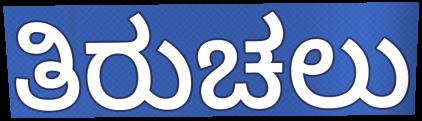
ತಿರುಚಲು